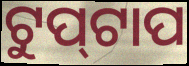
ଟୁପ୍‌ଟାପ